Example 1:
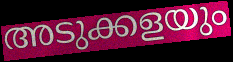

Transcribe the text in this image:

അടുക്കളയും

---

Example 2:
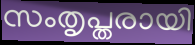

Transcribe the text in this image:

സംതൃപ്തരായി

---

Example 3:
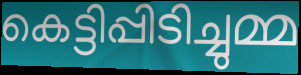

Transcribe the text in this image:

കെട്ടിപ്പിടിച്ചുമ്മ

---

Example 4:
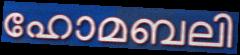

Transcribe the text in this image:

ഹോമബലി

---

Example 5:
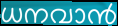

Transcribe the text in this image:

ധനവാൻ